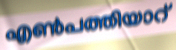
എൺപത്തിയാറ്